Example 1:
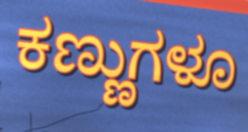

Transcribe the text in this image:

ಕಣ್ಣುಗಳೂ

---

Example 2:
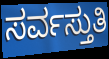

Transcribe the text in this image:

ಸರ್ವಸ್ತುತಿ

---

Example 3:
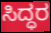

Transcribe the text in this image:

ಸಿದ್ಧರ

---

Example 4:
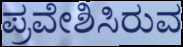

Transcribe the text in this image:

ಪ್ರವೇಶಿಸಿರುವ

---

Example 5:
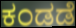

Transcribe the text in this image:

ಕಂಡಡೆ